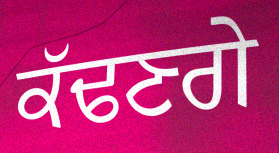
ਕੱਢਣਗੇ